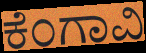
ಕೆಂಗಾವಿ